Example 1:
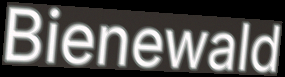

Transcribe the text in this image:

Bienewald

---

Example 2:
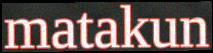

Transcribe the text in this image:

matakun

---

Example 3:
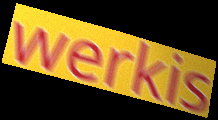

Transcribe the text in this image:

werkis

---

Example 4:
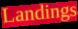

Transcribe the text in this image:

Landings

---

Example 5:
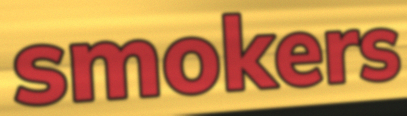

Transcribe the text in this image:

smokers